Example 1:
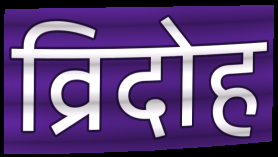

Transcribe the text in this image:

व्रिदोह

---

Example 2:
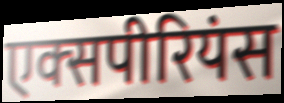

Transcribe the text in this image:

एक्‍सपीरियंस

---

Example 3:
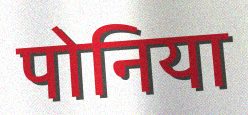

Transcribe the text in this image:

पोनिया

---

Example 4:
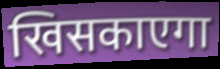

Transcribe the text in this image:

खिसकाएगा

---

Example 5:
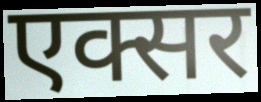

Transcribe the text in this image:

एक्सर